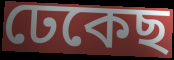
ঢেকেছ